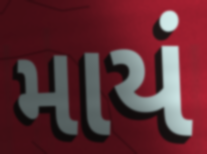
માયં